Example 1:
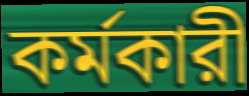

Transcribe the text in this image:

কর্মকারী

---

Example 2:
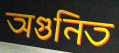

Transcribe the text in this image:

অগুনিত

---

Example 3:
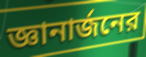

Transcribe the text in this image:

জ্ঞানার্জনের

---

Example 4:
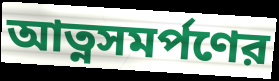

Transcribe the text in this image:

আত্নসমর্পণের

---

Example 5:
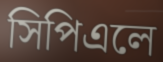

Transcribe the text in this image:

সিপিএলে